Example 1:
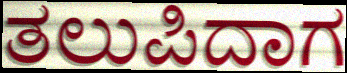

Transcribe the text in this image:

ತಲುಪಿದಾಗ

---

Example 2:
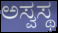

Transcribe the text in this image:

ಅಸ್ವಸ್ಥ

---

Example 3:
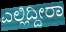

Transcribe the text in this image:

ಎಲ್ಲಿದ್ದೀರಾ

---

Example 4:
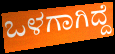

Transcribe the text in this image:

ಒಳಗಾಗಿದ್ದೆ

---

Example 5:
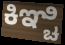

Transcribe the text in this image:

ಕಿಞ್ಚಿ